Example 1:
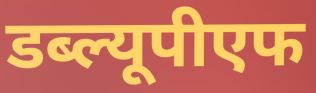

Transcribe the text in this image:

डब्ल्यूपीएफ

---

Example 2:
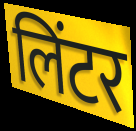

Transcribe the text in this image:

लिंटर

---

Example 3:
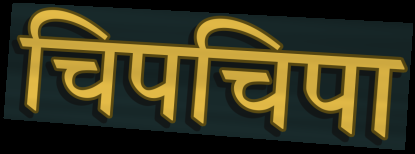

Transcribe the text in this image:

चिपचिपा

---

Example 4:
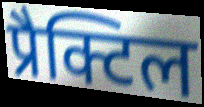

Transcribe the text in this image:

प्रैक्टिल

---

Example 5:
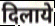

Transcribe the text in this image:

दिलाये